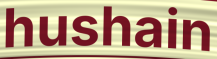
hushain